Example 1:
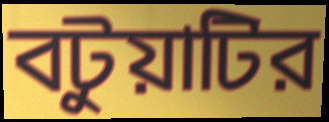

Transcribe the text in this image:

বটুয়াটির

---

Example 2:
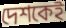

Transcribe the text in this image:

দেশকেই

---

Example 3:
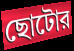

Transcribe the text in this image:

ছোটোর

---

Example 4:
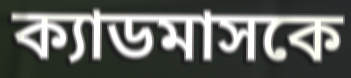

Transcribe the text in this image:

ক্যাডমাসকে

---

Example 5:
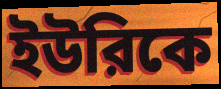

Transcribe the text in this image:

ইউরিকে